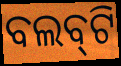
ବଲବ୍‌ଟି